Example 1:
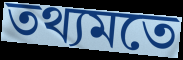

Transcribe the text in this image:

তথ্যমতে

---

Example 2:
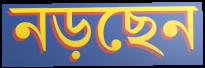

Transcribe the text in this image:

নড়ছেন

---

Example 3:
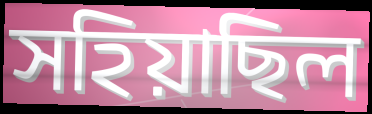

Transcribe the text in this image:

সহিয়াছিল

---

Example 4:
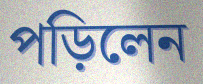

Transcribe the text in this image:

পড়িলেন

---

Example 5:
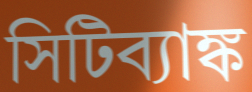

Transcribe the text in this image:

সিটিব্যাঙ্ক